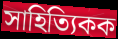
সাহিত্যিকক